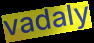
vadaly